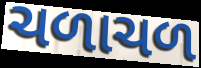
ચળાચળ